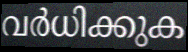
വർധിക്കുക